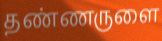
தண்ணருளை